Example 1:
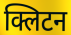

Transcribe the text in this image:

क्लिटन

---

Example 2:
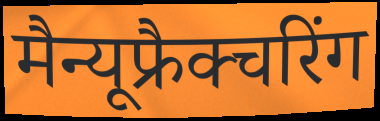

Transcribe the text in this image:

मैन्यूफ्रैक्चरिंग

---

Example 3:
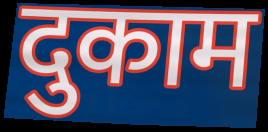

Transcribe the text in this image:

दुकाम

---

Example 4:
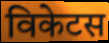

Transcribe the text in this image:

विकेटस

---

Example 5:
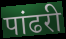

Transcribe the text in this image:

पांढरी